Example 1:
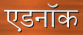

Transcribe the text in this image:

एडनॉक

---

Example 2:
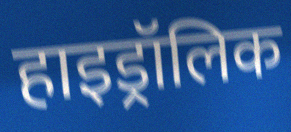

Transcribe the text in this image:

हाइड्रॉलिक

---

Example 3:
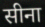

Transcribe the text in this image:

सीना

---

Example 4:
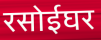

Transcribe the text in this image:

रसोईघर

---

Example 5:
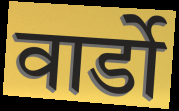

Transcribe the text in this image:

वार्डो